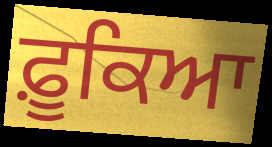
ਫ਼ੂਕਿਆ